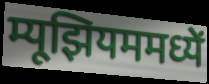
म्यूझियममध्यें